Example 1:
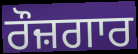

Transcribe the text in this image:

ਰੌਜ਼ਗਾਰ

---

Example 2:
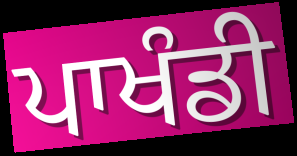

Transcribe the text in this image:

ਪਾਖੰਡੀ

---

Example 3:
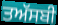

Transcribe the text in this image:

ਤਅੱਸਬੀ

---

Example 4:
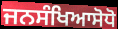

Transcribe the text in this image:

ਜਨਸੰਖਿਆਸੋਧੋ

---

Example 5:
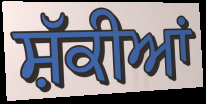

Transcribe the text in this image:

ਸ਼ੱਕੀਆਂ